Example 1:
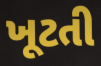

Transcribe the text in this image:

ખૂટતી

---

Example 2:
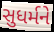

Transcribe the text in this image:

સુધર્મને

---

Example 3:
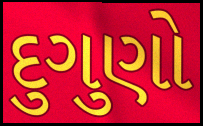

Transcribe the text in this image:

દુગુણો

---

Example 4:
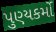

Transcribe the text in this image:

પુણ્યકર્મો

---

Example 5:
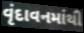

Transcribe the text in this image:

વૃંદાવનમાંથી